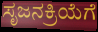
ಸೃಜನಕ್ರಿಯೆಗೆ